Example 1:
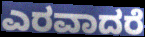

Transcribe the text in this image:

ಎರವಾದರೆ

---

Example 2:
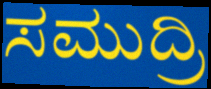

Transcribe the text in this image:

ಸಮುದ್ರಿ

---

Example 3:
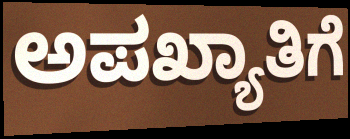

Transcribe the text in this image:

ಅಪಖ್ಯಾತಿಗೆ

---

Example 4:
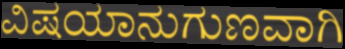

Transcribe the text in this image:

ವಿಷಯಾನುಗುಣವಾಗಿ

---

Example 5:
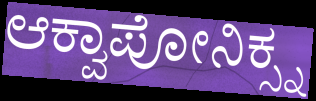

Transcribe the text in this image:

ಆಕ್ವಾಪೋನಿಕ್ಸ್ನ